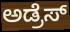
ಅಡ್ರೆಸ್